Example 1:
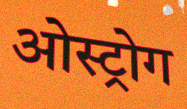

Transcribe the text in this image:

ओस्ट्रोग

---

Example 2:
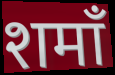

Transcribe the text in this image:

शमाँ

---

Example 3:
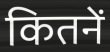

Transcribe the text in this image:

कितनें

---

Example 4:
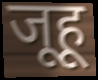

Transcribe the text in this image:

जूहू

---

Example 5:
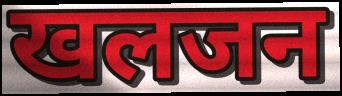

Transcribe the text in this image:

खलजन